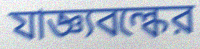
যাজ্ঞ্যবল্কের